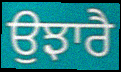
ਉਝਾਰੈ